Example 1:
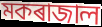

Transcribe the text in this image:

মকৰাজাল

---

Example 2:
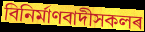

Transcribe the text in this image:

বিনিৰ্মাণবাদীসকলৰ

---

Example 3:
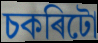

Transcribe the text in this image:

চকৰিটো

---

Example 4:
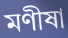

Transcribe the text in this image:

মণীষা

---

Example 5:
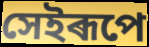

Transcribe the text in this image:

সেইৰূপে